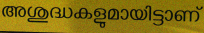
അശുദ്ധകളുമായിട്ടാണ്